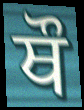
ਥੌ